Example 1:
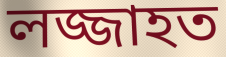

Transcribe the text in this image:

লজ্জাহত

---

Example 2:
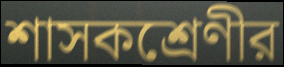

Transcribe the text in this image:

শাসকশ্রেণীর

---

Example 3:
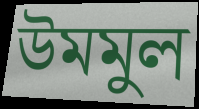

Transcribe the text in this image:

উমমুল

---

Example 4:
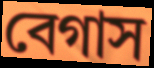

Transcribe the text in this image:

বেগাস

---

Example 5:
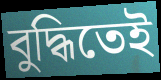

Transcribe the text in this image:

বুদ্ধিতেই